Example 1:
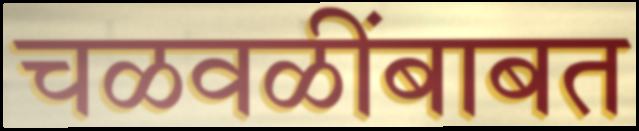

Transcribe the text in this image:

चळवळींबाबत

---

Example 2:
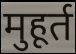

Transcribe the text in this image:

मुहूर्त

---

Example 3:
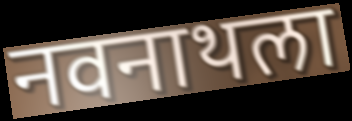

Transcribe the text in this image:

नवनाथला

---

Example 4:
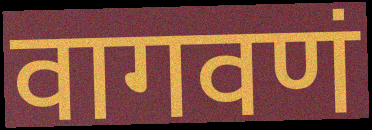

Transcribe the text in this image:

वागवणं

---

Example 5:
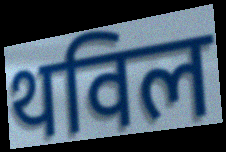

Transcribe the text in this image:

थविल